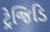
ટ્રેજિડિ